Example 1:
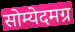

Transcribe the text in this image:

सोम्येदमग्र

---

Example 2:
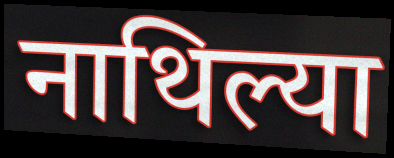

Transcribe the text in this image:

नाथिल्या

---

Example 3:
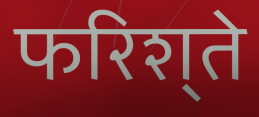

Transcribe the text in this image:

फरिश्ते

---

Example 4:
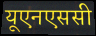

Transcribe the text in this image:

यूएनएससी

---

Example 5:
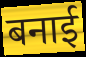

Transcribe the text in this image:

बनाई